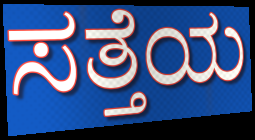
ಸತ್ತೆಯ